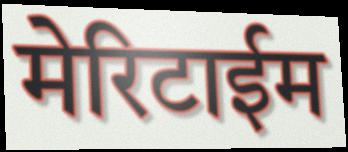
मेरिटाईम